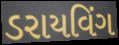
ડરાયવિંગ